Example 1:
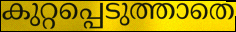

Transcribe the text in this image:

കുറ്റപ്പെടുത്താതെ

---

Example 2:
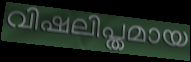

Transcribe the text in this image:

വിഷലിപ്തമായ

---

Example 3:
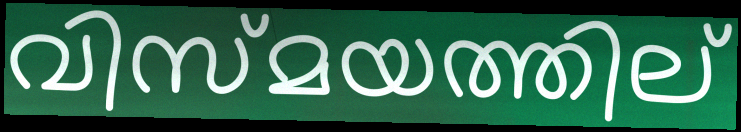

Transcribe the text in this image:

വിസ്മയത്തില്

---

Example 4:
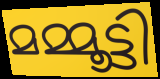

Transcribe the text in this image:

മമ്മൂട്ടി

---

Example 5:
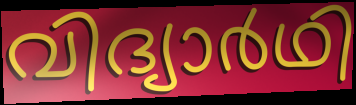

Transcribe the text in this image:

വിദ്യാർഥി